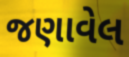
જણાવેલ